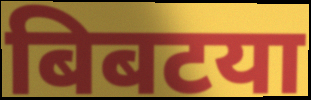
बिबटया